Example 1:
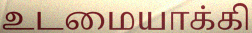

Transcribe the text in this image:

உடமையாக்கி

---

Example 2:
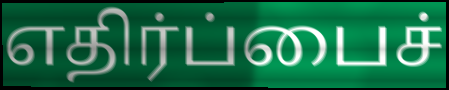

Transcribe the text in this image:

எதிர்ப்பைச்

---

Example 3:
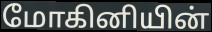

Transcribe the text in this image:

மோகினியின்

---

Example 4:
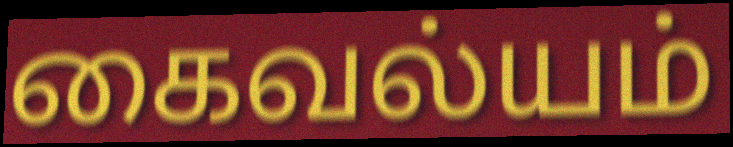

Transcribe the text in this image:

கைவல்யம்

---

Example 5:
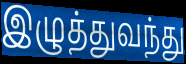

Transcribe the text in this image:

இழுத்துவந்து